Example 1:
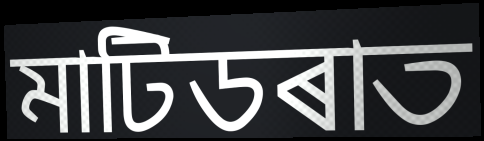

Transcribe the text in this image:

মাটিডৰাত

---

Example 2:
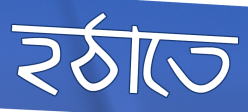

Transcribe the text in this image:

হঠাতে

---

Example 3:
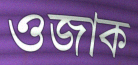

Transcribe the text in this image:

ওজাক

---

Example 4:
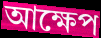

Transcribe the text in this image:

আক্ষেপ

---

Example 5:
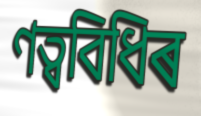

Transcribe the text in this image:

ণত্ববিধিৰ